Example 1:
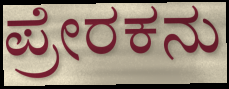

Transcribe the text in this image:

ಪ್ರೇರಕನು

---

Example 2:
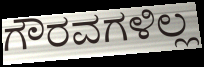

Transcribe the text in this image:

ಗೌರವಗಳಿಲ್ಲ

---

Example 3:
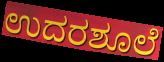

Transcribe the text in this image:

ಉದರಶೂಲೆ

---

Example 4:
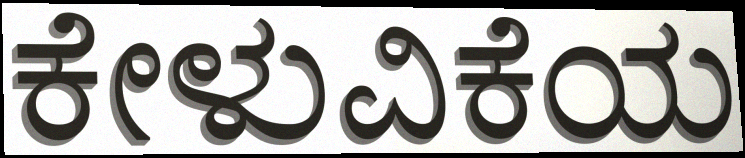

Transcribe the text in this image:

ಕೇಳುವಿಕೆಯ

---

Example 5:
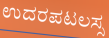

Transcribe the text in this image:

ಉದರಪಟಲಸ್ಸ